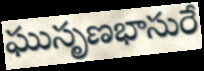
ఘుసృణభాసురే